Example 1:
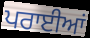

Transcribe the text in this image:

ਪਰਾਈਆਂ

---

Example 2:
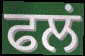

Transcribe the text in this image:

ਫਲਂ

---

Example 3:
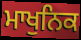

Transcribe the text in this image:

ਮਾਖੁਨਿਕ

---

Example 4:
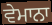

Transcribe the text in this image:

ਵੇਮਾਨਾ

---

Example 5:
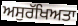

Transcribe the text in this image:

ਅਸੁਰੱਖਿਅਤਾ